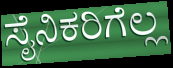
ಸೈನಿಕರಿಗೆಲ್ಲ